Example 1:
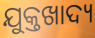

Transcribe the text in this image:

ଯୁକ୍ତଖାଦ୍ୟ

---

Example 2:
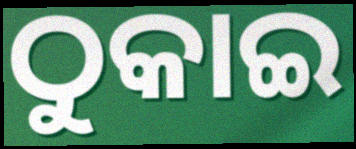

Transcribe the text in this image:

ଠୁକାଇ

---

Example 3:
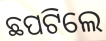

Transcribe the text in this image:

ଛପଟିଲେ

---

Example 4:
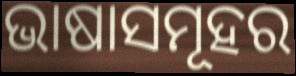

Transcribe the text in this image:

ଭାଷାସମୂହର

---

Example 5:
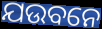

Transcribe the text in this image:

ଯଉବନେ